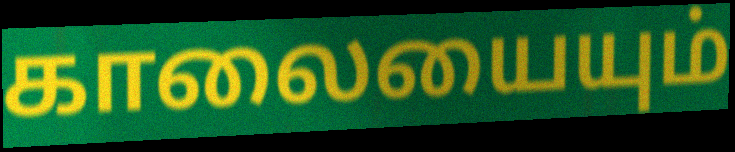
காலையையும்